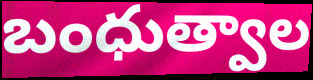
బంధుత్వాల